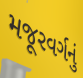
મજૂરવર્ગનું